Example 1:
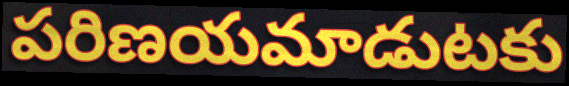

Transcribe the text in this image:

పరిణయమాడుటకు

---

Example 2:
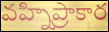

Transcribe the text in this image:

వహ్నిప్రాకార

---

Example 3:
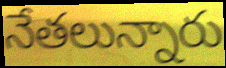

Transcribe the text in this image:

నేతలున్నారు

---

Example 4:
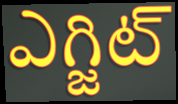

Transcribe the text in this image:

ఎగ్జిట్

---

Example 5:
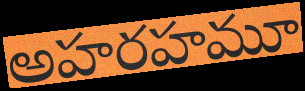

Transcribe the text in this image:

అహరహమూ